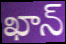
ఖాన్